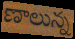
ణాలున్న